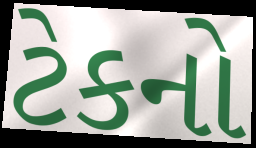
ટેકનો